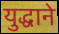
युद्धाने